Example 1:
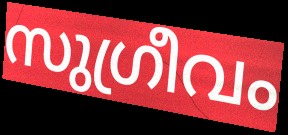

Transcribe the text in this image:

സുഗ്രീവം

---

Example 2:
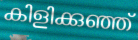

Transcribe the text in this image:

കിളിക്കുഞ്ഞ്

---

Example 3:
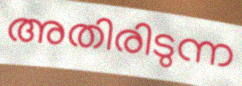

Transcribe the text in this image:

അതിരിടുന്ന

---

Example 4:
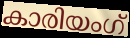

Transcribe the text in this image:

കാരിയംഗ്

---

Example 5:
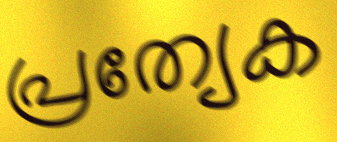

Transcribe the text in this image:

പ്രത്യേക